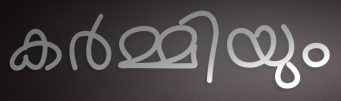
കർമ്മിയും